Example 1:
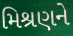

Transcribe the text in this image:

મિશ્રણને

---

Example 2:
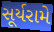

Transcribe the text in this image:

સૂર્યરામે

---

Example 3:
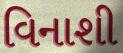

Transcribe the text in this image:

વિનાશી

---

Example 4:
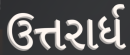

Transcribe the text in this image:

ઉત્તરાર્ધ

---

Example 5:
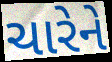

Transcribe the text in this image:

ચારેને